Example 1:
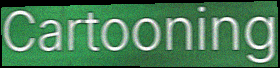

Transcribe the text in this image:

Cartooning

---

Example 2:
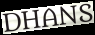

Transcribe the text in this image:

DHANS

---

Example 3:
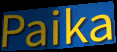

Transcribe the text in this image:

Paika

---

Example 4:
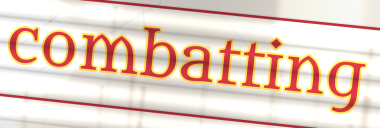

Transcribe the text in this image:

combatting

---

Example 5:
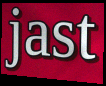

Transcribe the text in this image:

jast